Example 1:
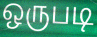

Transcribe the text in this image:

ஒருபடி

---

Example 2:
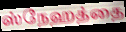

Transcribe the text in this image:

ஸ்நேஹத்தை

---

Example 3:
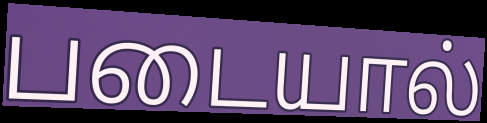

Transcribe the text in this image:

படையால்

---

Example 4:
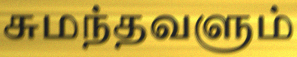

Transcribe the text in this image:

சுமந்தவளும்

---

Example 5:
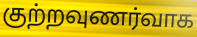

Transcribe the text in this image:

குற்றவுணர்வாக